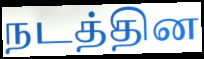
நடத்தின